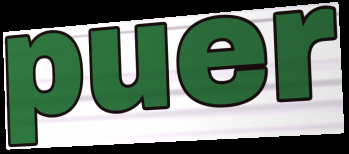
puer